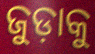
ଜୁଡ଼ାକୁ